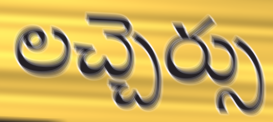
లచ్చెర్సు